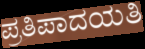
ಪ್ರತಿಪಾದಯತಿ